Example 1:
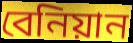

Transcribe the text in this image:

বেনিয়ান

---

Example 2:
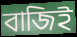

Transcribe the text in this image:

বাজিই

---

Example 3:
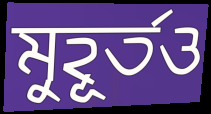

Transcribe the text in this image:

মুহূর্তও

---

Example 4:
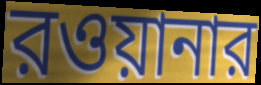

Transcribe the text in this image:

রওয়ানার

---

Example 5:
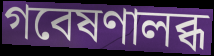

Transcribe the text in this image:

গবেষণালব্ধ